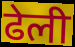
ढेली